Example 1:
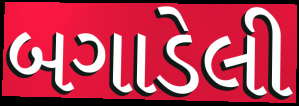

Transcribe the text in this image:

બગાડેલી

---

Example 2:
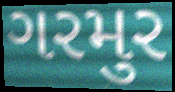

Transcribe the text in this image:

ગરમુર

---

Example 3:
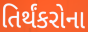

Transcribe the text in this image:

તિર્થંકરોના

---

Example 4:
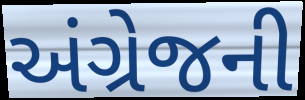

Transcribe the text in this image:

અંગ્રેજની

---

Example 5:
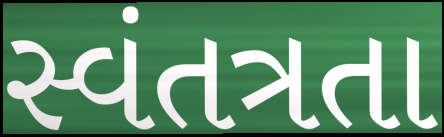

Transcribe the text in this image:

સ્વંતત્રતા